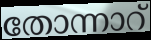
തോന്നാറ്